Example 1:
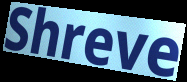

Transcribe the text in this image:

Shreve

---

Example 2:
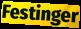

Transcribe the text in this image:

Festinger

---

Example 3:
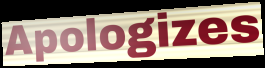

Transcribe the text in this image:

Apologizes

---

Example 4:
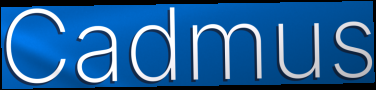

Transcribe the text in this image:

Cadmus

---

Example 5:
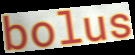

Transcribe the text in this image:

bolus